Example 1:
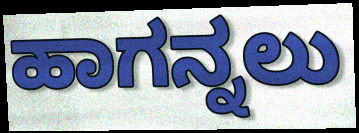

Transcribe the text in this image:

ಹಾಗನ್ನಲು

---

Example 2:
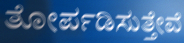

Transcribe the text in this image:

ತೋರ್ಪಡಿಸುತ್ತೇವೆ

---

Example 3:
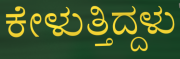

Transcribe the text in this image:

ಕೇಳುತ್ತಿದ್ದಳು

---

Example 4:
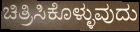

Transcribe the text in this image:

ಚಿತ್ರಿಸಿಕೊಳ್ಳುವುದು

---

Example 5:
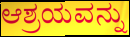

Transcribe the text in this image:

ಆಶ್ರಯವನ್ನು